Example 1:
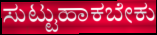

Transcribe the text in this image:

ಸುಟ್ಟುಹಾಕಬೇಕು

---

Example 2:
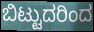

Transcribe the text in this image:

ಬಿಟ್ಟುದರಿಂದ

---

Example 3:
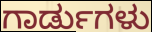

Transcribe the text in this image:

ಗಾರ್ಡುಗಳು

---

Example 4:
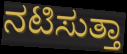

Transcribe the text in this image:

ನಟಿಸುತ್ತಾ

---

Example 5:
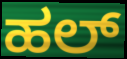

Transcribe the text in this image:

ಹಲ್